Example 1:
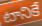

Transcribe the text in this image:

టానికే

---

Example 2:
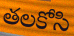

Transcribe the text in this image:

తలకోసి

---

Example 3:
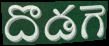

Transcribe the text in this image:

దొడగె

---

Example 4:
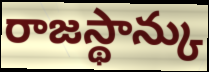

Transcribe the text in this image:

రాజస్థాన్కు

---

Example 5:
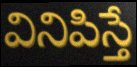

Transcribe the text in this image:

వినిపిస్తే